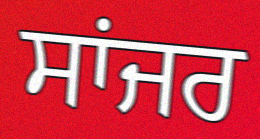
ਸਾਂਜਰ